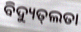
ବିଦ୍ୟୁତ୍‌ଲତା